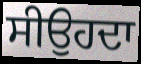
ਸੀਉਹਦਾ